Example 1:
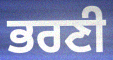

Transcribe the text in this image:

ਭਰਣੀ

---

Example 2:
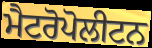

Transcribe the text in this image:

ਮੈਟਰੋਪੋਲੀਟਨ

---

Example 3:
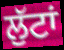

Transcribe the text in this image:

ਲੁੱਟਾਂ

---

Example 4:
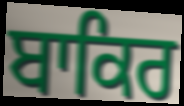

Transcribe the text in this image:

ਬਾਕਿਰ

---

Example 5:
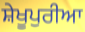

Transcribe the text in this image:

ਸ਼ੇਖੂਪੁਰੀਆ